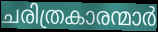
ചരിത്രകാരന്മാർ